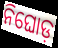
ନିଘୋଡ଼